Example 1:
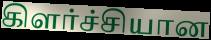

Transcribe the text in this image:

கிளர்ச்சியான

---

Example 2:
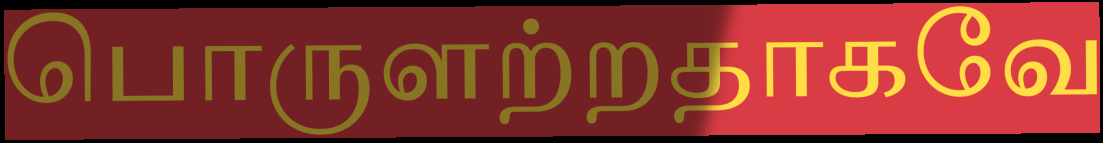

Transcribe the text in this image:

பொருளற்றதாகவே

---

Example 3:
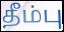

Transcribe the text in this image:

தீம்பு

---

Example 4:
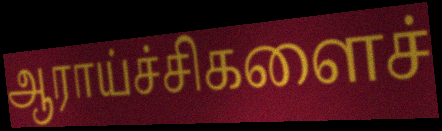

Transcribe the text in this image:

ஆராய்ச்சிகளைச்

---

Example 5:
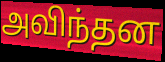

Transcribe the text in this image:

அவிந்தன